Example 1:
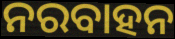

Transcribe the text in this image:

ନରବାହନ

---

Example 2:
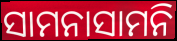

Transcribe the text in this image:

ସାମନାସାମନି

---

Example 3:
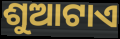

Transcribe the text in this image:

ଶୁଆଟାଏ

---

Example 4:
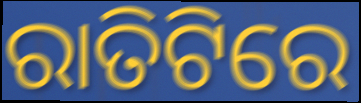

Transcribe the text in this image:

ରାତିଟିରେ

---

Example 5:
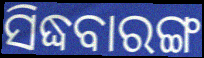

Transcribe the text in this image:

ସିଦ୍ଧବାରଙ୍ଗ